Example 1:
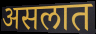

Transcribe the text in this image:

असलात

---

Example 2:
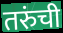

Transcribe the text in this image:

तरुंची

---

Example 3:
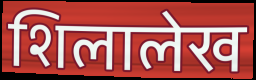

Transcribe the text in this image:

शिलालेख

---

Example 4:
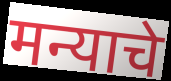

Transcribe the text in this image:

मन्याचे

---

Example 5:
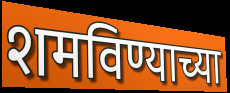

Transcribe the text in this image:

शमविण्याच्या